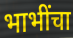
भाभींचा